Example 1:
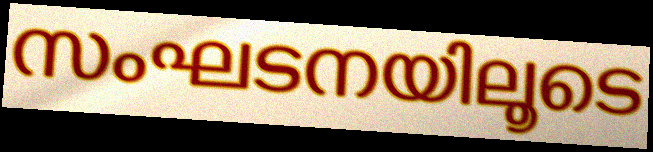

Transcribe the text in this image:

സംഘടനയിലൂടെ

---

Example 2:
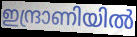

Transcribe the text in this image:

ഇന്ദ്രാണിയിൽ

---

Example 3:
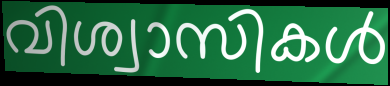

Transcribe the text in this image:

വിശ്വാസികൾ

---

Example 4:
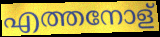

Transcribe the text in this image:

എത്തനോള്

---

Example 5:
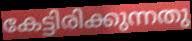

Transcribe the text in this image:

കേട്ടിരിക്കുന്നതു